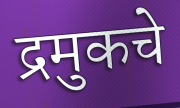
द्रमुकचे